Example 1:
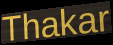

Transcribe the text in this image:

Thakar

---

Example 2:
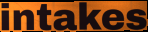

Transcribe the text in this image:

intakes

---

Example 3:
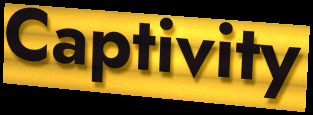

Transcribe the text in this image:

Captivity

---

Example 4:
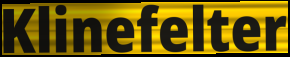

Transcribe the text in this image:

Klinefelter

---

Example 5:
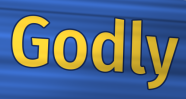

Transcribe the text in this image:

Godly